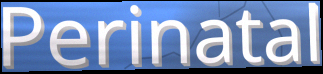
Perinatal